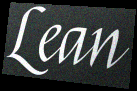
Lean